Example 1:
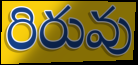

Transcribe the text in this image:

రిరువు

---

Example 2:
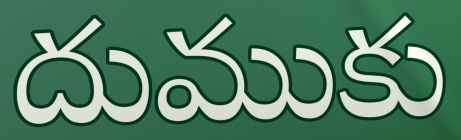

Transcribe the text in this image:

దుముకు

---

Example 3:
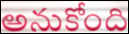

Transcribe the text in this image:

అనుకోంది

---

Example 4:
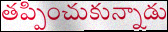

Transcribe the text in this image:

తప్పించుకున్నాడు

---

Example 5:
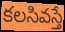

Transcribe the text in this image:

కలసివస్తే